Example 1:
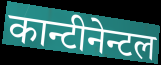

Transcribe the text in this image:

कान्टीनेन्टल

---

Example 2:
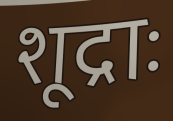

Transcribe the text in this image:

शूद्राः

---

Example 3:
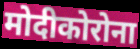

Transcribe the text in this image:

मोदीकोरोना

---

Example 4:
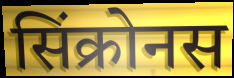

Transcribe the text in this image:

सिंक्रोनस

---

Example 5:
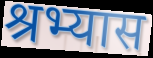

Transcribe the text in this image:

श्रभ्यास